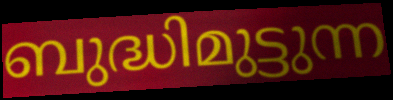
ബുദ്ധിമുട്ടുന്ന